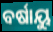
ବର୍ଷାୟୁ